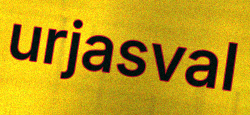
urjasval